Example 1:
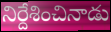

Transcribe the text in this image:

నిర్దేశించినాడు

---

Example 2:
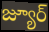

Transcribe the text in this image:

జ్యూర్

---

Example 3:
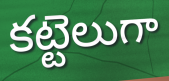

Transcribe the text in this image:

కట్టెలుగా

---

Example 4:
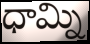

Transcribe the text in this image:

ధామ్ని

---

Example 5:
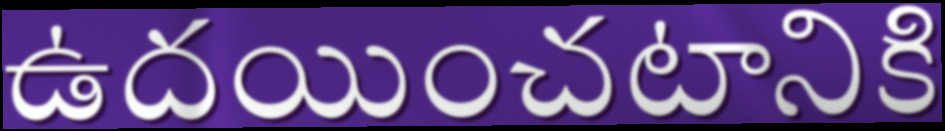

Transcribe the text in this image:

ఉదయించటానికి